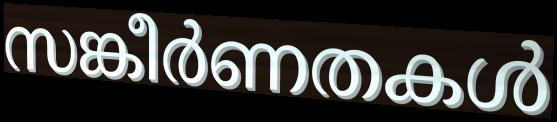
സങ്കീർണതകൾ